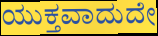
ಯುಕ್ತವಾದುದೇ